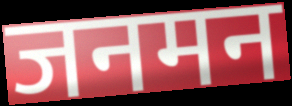
जनमन